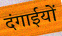
दंगाईयों